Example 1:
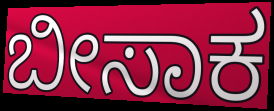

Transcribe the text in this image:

ಬೀಸಾಕ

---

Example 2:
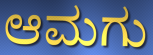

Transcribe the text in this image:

ಆಮಗು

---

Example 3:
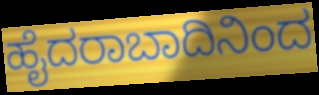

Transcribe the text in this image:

ಹೈದರಾಬಾದಿನಿಂದ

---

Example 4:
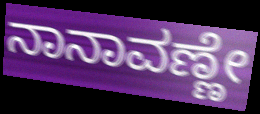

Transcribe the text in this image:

ನಾನಾವಣ್ಣೇ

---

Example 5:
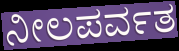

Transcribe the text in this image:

ನೀಲಪರ್ವತ